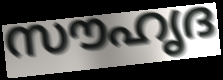
സൗഹൃദ